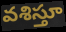
వశిస్తూ